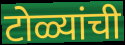
टोळ्यांची